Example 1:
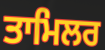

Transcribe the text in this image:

ਤਾਮਿਲਰ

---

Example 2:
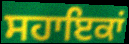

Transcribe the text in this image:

ਸਹਾਇਕਾਂ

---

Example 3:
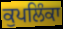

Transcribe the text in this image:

ਕੁਪਲਿੰਕਾ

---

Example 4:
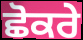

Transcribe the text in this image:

ਛੋਕਰੇ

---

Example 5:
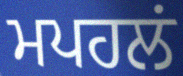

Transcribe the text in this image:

ਮਪਹਲਂ